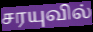
சரயுவில்